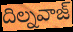
దిల్నవాజ్